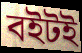
বইটই